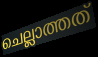
ചെല്ലാത്തത്